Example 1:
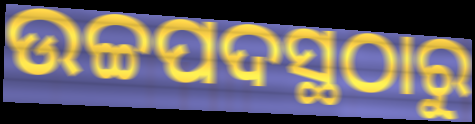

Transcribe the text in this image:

ଉଚ୍ଚପଦସ୍ଥଠାରୁ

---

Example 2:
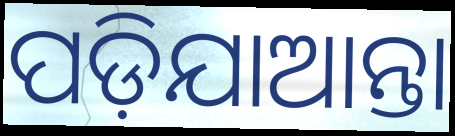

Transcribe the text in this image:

ପଡ଼ିଯାଆନ୍ତା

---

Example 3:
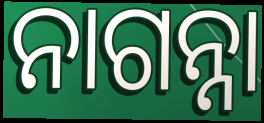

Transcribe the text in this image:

ନାଗନ୍ନା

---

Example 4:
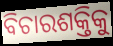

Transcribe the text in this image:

ବିଚାରଶକ୍ତିକୁ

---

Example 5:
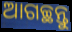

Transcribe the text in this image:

ଆଗଚ୍ଛନ୍ତୁ